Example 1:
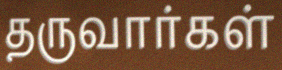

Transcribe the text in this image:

தருவார்கள்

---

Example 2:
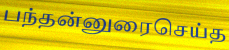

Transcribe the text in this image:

பந்தன்னுரைசெய்த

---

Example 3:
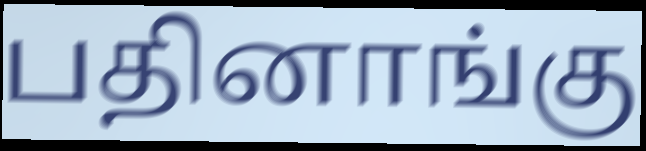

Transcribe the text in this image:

பதினாங்கு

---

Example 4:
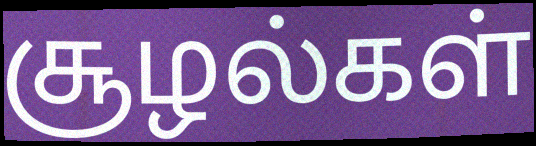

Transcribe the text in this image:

சூழல்கள்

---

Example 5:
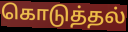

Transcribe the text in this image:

கொடுத்தல்